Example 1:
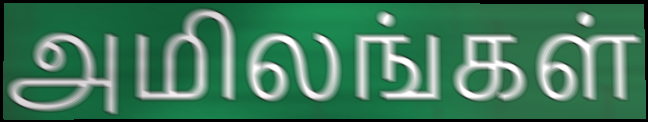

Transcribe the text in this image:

அமிலங்கள்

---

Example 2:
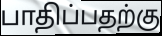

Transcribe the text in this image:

பாதிப்பதற்கு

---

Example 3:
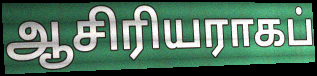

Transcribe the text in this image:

ஆசிரியராகப்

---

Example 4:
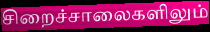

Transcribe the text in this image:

சிறைச்சாலைகளிலும்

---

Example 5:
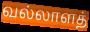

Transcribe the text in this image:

வல்லாளத்